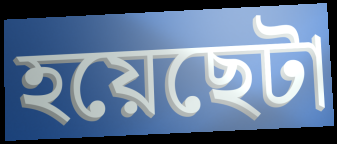
হয়েছেটা